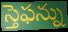
స్తెఫన్ను